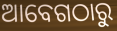
ଆବେଗଠାରୁ